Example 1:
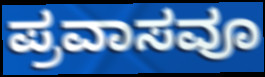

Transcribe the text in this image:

ಪ್ರವಾಸವೂ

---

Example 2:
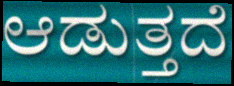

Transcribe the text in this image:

ಆಡುತ್ತದೆ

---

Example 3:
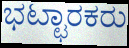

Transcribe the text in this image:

ಭಟ್ಟಾರಕರು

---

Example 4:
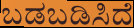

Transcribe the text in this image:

ಬಡಬಡಿಸಿದೆ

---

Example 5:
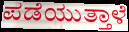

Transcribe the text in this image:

ಪಡೆಯುತ್ತಾಳೆ